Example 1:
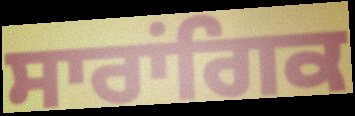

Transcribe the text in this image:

ਸਾਰਾਂਗਿਕ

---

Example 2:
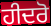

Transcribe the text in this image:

ਹੀਦਰੋ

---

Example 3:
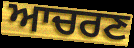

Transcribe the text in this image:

ਆਚਰਣ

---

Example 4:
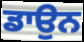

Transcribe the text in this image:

ਡਾਉਨ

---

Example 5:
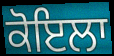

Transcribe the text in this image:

ਕੋਇਲਾ